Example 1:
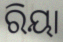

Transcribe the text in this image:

ରିୟା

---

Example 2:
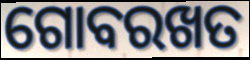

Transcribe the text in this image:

ଗୋବରଖତ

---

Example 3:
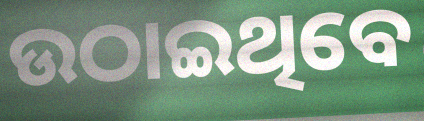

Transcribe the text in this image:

ଉଠାଇଥିବେ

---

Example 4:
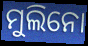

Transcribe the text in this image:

ମୁଲିନୋ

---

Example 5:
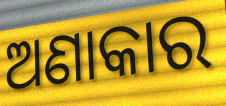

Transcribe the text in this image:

ଅଣାକାର